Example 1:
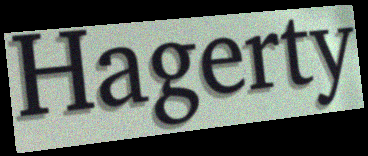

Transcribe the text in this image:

Hagerty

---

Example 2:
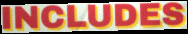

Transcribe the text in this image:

INCLUDES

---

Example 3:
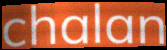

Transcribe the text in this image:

chalan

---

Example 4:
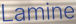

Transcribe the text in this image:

Lamine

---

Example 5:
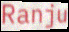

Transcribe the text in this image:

Ranju